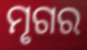
ମୃଗର